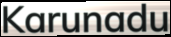
Karunadu